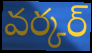
వర్కర్